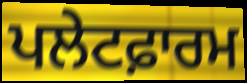
ਪਲੇਟਫ਼ਾਰਮ